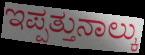
ಇಪ್ಪತ್ತುನಾಲ್ಕು